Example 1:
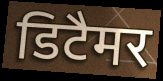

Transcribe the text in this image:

डिटैमर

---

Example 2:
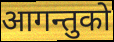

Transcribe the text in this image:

आगन्तुको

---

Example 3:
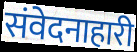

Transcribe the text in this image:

संवेदनाहारी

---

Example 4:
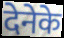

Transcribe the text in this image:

देनेके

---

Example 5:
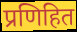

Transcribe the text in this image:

प्रणिहित